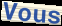
Vous